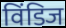
विंडिज